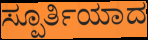
ಸ್ಪೂರ್ತಿಯಾದ